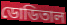
ডোডিতাল